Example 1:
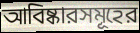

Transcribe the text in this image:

আবিষ্কারসমূহের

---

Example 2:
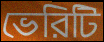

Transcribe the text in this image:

ভেরিটি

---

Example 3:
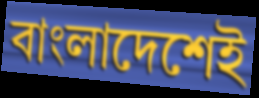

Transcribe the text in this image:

বাংলাদেশেই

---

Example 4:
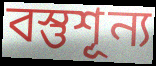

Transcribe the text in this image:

বস্তুশূন্য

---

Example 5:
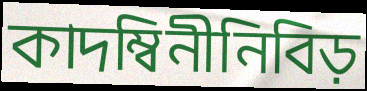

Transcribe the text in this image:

কাদম্বিনীনিবিড়